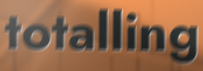
totalling